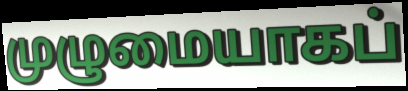
முழுமையாகப்